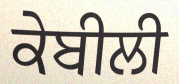
ਕੇਬੀਲੀ